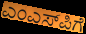
ಎಂಎಸ್‌ಪಿಗೆ